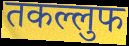
तकल्लुफ